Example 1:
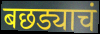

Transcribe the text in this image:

बछड्याचं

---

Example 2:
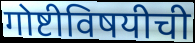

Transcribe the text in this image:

गोष्टीविषयीची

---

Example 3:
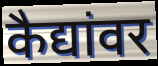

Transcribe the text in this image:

कैद्यांवर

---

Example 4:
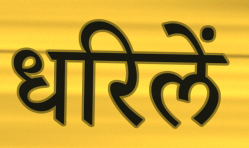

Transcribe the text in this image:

धरिलें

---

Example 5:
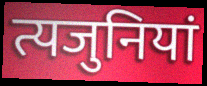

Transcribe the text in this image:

त्यजुनियां